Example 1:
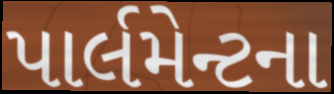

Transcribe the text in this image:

પાર્લમેન્ટના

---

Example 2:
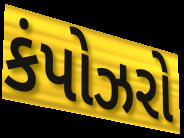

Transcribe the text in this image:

કંપોઝરો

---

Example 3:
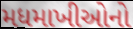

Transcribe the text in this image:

મધમાખીઓનો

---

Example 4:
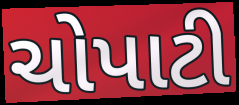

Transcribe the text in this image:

ચોપાટી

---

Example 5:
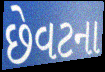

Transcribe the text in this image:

છેવટના